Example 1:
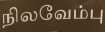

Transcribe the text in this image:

நிலவேம்பு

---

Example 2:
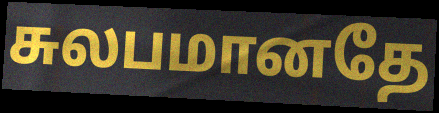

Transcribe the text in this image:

சுலபமானதே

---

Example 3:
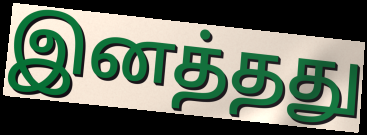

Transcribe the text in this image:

இனத்தது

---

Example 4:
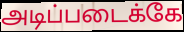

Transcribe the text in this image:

அடிப்படைக்கே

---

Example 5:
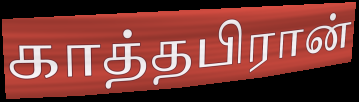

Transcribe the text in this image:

காத்தபிரான்